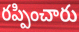
రప్పించారు